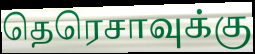
தெரெசாவுக்கு